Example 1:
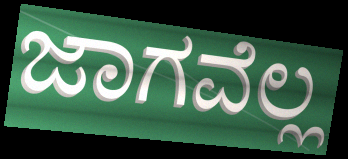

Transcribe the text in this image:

ಜಾಗವೆಲ್ಲ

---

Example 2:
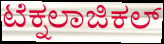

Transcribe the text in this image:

ಟೆಕ್ನಲಾಜಿಕಲ್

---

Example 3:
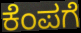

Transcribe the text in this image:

ಕೆಂಪಗೆ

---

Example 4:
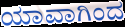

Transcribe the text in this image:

ಯಾವಾಗಿಂದ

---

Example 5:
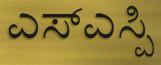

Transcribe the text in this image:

ಎಸ್ಎಸ್ಪಿ